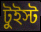
টুইস্ট